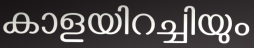
കാളയിറച്ചിയും